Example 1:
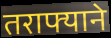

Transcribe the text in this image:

तराफ्याने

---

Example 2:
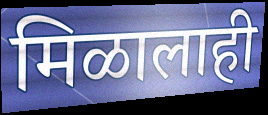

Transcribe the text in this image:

मिळालाही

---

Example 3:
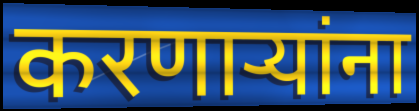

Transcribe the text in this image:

करणार्‍यांना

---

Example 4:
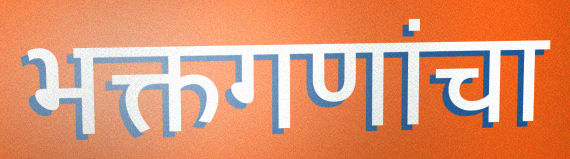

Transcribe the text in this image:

भक्तगणांचा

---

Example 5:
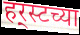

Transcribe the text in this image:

हर्स्टच्या